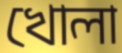
খোলা